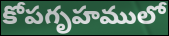
కోపగృహములో